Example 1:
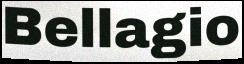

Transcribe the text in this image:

Bellagio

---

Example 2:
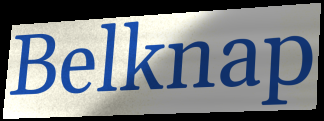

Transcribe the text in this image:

Belknap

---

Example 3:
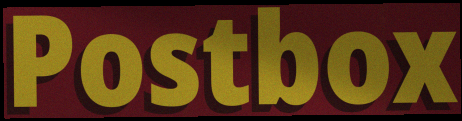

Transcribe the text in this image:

Postbox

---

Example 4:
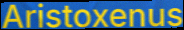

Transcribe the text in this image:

Aristoxenus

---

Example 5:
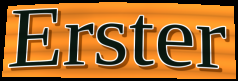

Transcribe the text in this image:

Erster